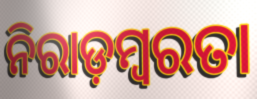
ନିରାଡ଼ମ୍ବରତା